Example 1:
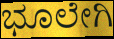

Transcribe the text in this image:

ಭೂಲೇಗಿ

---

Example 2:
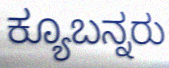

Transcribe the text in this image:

ಕ್ಯೂಬನ್ನರು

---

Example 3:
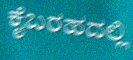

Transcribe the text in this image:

ಕೈಬರಹದಲ್ಲಿ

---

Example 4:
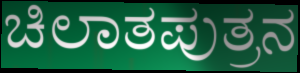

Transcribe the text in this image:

ಚಿಲಾತಪುತ್ರನ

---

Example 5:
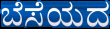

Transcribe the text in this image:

ಬೆಸೆಯದ